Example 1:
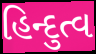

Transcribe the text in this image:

હિન્દુત્વ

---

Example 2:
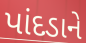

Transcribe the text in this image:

પાંદડાને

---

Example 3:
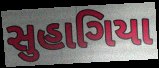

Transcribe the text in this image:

સુહાગિયા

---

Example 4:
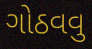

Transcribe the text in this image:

ગોઠવવુ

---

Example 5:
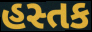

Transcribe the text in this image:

હસ્તક